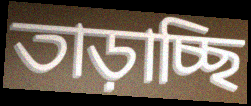
তাড়াচ্ছি